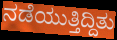
ನಡೆಯುತ್ತಿದ್ದಿತು